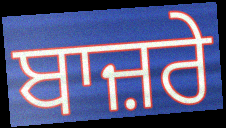
ਬਾਜ਼ਰੇ